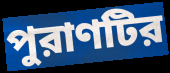
পুরাণটির